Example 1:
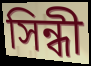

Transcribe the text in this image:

সিন্ধী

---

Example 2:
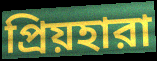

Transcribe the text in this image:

প্রিয়হারা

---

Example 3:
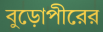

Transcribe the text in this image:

বুড়োপীরের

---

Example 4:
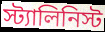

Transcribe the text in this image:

স্ট্যালিনিস্ট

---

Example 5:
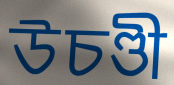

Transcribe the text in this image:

উচণ্ডী